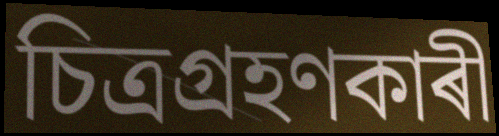
চিত্ৰগ্ৰহণকাৰী